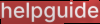
helpguide